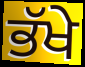
ਭੱਖੇ